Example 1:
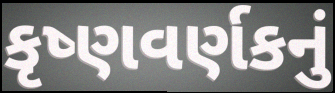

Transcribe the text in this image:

કૃષ્ણવર્ણકનું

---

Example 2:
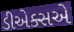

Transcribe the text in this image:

ડીએક્સએ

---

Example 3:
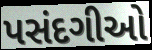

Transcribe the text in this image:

પસંદગીઓ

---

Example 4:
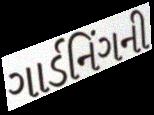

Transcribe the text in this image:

ગાર્ડનિંગની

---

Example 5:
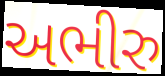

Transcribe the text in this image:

અભીરુ